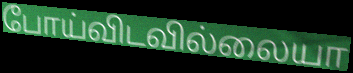
போய்விடவில்லையா